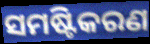
ସମଷ୍ଟିକରଣ